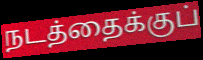
நடத்தைக்குப்